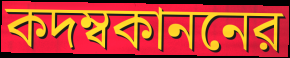
কদম্বকাননের